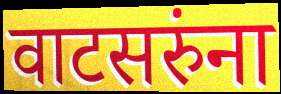
वाटसरुंना